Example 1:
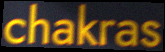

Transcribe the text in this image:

chakras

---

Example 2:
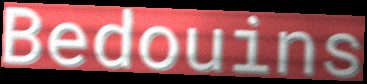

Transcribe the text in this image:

Bedouins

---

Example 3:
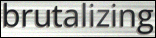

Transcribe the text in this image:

brutalizing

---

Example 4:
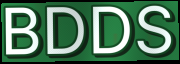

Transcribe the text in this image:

BDDS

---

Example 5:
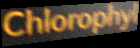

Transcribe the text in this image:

Chlorophyl